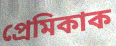
প্ৰেমিকাক